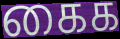
கைக